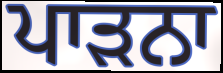
ਪਾੜਨਾ